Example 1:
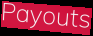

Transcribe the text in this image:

Payouts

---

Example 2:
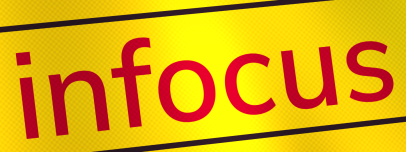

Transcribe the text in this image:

infocus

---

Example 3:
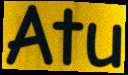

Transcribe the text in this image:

Atu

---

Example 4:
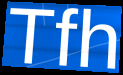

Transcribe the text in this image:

Tfh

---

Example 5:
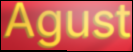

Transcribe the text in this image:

Agust